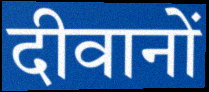
दीवानों